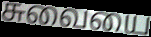
சுவையை